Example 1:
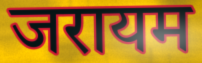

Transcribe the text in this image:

जरायम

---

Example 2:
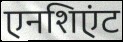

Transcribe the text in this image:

एनशिएंट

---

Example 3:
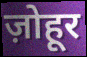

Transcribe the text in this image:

ज़ोहूर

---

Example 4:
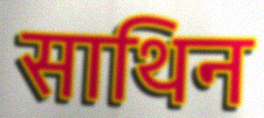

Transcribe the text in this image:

साथिन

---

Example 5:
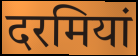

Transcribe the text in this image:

दरमियां